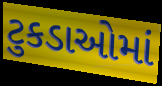
ટુકડાઓમાં